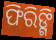
ଫିରିଙ୍ଗି